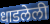
धाडलेली